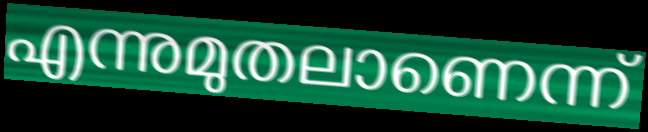
എന്നുമുതലാണെന്ന്